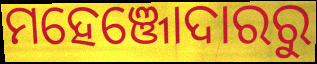
ମହେଞ୍ଜୋଦାରରୁ